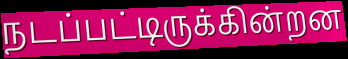
நடப்பட்டிருக்கின்றன